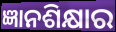
ଜ୍ଞାନଶିକ୍ଷାର